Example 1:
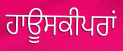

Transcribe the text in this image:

ਹਾਊਸਕੀਪਰਾਂ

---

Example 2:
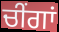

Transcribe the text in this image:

ਚੀਂਗਾਂ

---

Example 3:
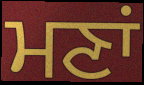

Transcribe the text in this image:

ਮਣਾਂ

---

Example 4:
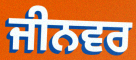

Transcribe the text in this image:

ਜੀਨਵਰ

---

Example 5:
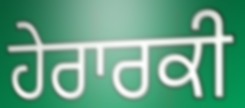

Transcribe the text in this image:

ਹੇਰਾਰਕੀ